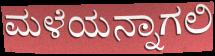
ಮಳೆಯನ್ನಾಗಲಿ